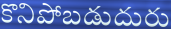
కొనిపోబడుదురు